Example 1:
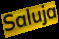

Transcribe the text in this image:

Saluja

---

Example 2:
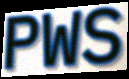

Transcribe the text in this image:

PWS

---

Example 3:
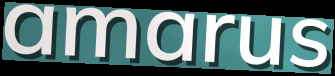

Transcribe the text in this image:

amarus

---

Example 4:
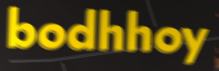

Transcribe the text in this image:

bodhhoy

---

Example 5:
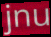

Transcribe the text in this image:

jnu